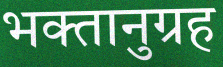
भक्तानुग्रह